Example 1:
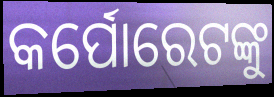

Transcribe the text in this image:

କର୍ପୋରେଟଙ୍କୁ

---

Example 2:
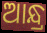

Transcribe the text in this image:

ଆନ୍ଧ୍ର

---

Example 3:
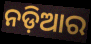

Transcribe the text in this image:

ନଡ଼ିଆର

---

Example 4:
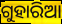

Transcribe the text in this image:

ଗୁହାରିଆ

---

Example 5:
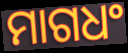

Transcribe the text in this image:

ମାଗଧଂ